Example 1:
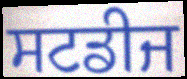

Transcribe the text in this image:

ਸਟਡੀਜ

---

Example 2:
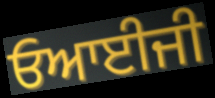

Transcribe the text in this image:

ਓਆਈਜੀ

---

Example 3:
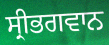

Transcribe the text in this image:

ਸ੍ਰੀਭਗਵਾਨ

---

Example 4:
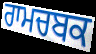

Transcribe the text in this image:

ਰਾਮਚਬਕ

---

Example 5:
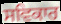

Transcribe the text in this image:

ਸਵਿਕਾਰ